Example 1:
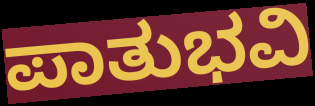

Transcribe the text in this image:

ಪಾತುಭವಿ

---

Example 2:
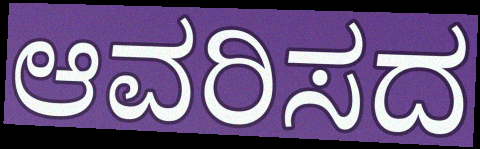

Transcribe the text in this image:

ಆವರಿಸದ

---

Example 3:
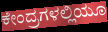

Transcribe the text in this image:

ಕೇಂದ್ರಗಳಲ್ಲಿಯೂ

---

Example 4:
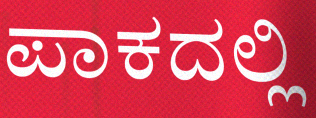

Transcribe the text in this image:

ಪಾಕದಲ್ಲಿ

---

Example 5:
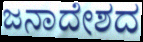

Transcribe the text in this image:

ಜನಾದೇಶದ